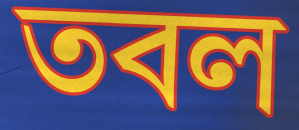
তবল